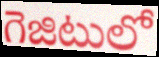
గెజిటులో